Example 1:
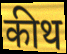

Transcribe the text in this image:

कीथ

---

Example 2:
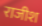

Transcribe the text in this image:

राजीश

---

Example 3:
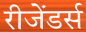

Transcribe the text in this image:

रीजेंडर्स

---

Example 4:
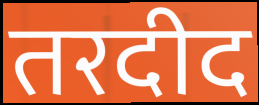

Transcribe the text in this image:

तरदीद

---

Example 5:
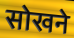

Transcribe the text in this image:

सोखने